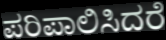
ಪರಿಪಾಲಿಸಿದರೆ